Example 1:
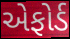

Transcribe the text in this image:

એફોર્ડ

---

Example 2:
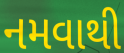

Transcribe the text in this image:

નમવાથી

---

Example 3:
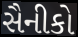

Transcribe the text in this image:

સૈનીકો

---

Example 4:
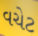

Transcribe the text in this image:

વચેટ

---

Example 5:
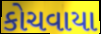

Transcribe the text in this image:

કોચવાયા